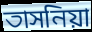
তাসনিয়া